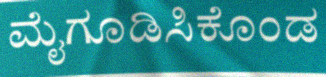
ಮೈಗೂಡಿಸಿಕೊಂಡ